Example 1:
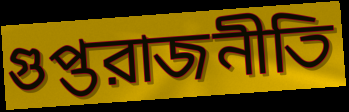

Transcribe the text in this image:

গুপ্তরাজনীতি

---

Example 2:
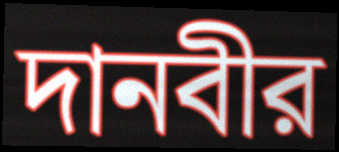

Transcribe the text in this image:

দানবীর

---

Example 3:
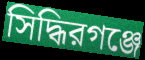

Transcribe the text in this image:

সিদ্ধিরগঞ্জে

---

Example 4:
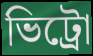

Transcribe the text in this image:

ভিট্রো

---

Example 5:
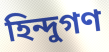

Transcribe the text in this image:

হিন্দুগণ